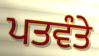
ਪਤਵੰਤੇ